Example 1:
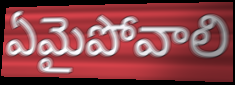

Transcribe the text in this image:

ఏమైపోవాలి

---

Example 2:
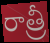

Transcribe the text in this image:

రాత్రీ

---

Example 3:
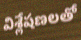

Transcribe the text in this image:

విశ్లేషణలతో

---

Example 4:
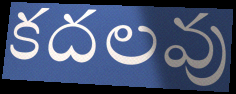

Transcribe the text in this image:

కదలవు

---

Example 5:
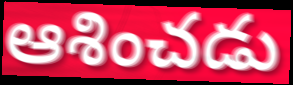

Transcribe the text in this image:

ఆశించడు